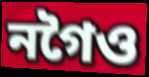
নগৈও